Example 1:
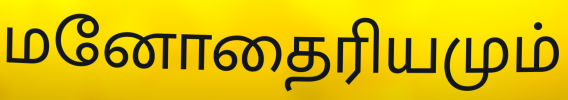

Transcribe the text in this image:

மனோதைரியமும்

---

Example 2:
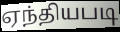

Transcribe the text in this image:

ஏந்தியபடி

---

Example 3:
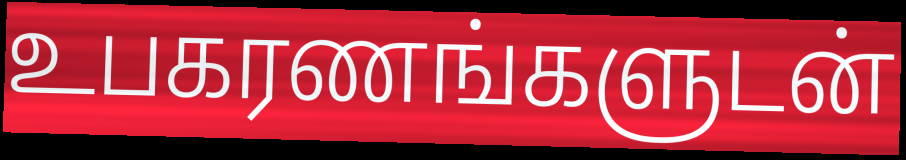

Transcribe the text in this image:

உபகரணங்களுடன்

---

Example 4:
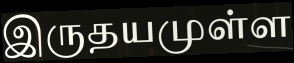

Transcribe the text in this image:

இருதயமுள்ள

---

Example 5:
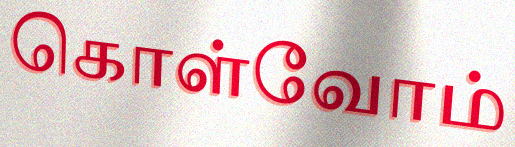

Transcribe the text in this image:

கொள்வோம்